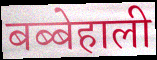
बब्बेहाली